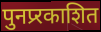
पुनप्र्रकाशित